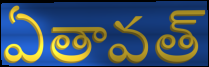
ఏతావత్